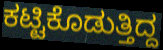
ಕಟ್ಟಿಕೊಡುತ್ತಿದ್ದ